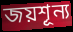
জয়শূন্য